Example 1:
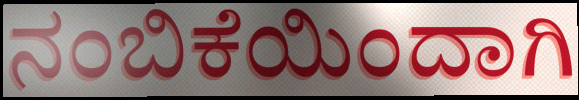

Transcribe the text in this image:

ನಂಬಿಕೆಯಿಂದಾಗಿ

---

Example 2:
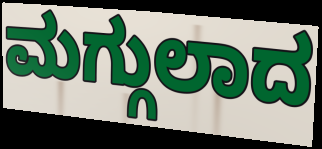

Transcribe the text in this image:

ಮಗ್ಗುಲಾದ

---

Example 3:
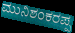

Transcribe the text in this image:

ಮುನಿಶಂಕರಪ್ಪ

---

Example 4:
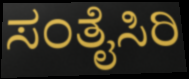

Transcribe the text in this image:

ಸಂತೈಸಿರಿ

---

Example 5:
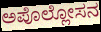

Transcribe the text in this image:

ಅಪೊಲ್ಲೋಸನ